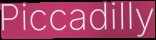
Piccadilly